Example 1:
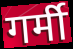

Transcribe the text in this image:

गर्मी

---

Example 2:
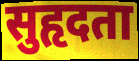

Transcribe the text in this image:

सुहृदता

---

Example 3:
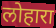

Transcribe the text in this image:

लोहारा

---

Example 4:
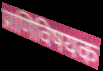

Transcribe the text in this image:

प्राणिविषयक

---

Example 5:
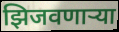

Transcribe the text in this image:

झिजवणाऱ्या